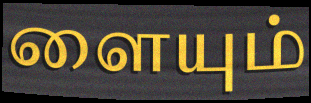
ளையும்